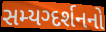
સમ્યગ્દર્શનનો